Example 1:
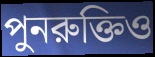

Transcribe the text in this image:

পুনরুক্তিও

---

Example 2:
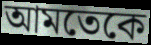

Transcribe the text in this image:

আমতেকে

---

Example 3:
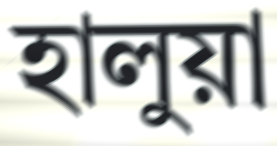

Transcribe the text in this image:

হালুয়া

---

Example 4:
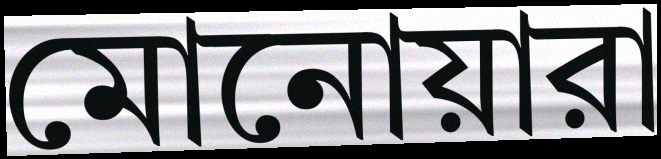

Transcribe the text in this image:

মোনোয়ারা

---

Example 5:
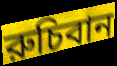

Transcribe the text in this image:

রুচিবান